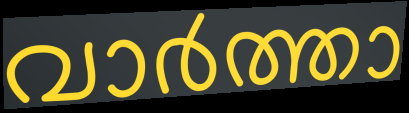
വാർത്താ